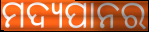
ମଦ୍ୟପାନର